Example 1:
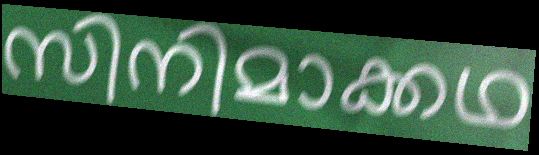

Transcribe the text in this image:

സിനിമാക്കഥ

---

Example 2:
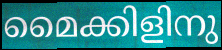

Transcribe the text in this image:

മൈക്കിളിനു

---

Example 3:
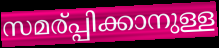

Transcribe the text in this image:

സമര്പ്പിക്കാനുള്ള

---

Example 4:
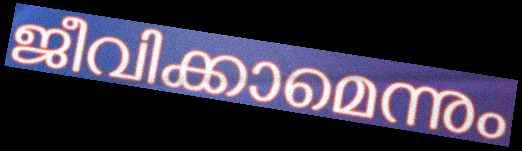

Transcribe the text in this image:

ജീവിക്കാമെന്നും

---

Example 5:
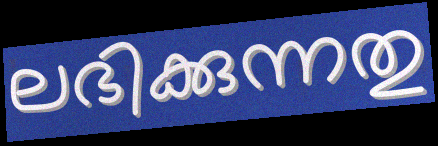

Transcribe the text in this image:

ലഭിക്കുന്നതു